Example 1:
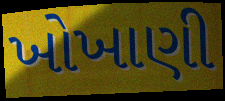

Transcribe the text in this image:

ખોખાણી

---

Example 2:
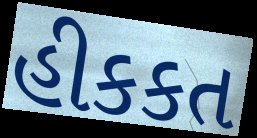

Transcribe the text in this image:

હીકકત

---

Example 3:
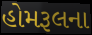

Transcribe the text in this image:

હોમરૂલના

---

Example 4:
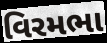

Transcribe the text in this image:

વિરમભા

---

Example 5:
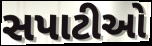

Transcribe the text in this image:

સપાટીઓ